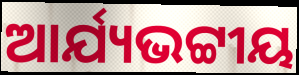
ଆର୍ଯ୍ୟଭଟ୍ଟୀୟ